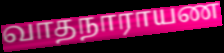
வாதநாராயண